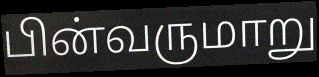
பின்வருமாறு